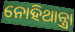
ନୋହିଥାନ୍ତ୍ରା